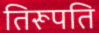
तिरूपति